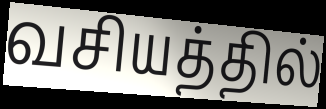
வசியத்தில்